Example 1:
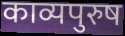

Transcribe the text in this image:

काव्यपुरुष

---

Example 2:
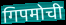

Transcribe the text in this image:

गिपमोची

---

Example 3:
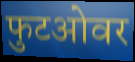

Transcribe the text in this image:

फुटओवर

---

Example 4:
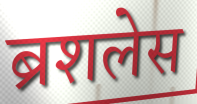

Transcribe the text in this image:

ब्रशलेस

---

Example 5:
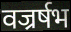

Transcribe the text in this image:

वज्रर्षभ